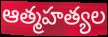
ఆత్మహత్యల